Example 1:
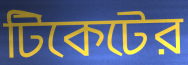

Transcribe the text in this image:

টিকেটের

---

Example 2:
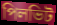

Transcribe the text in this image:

পিলভিট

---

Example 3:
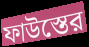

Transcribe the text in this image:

ফাউস্তের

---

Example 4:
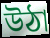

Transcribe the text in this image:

উঠা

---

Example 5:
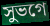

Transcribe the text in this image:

সুভগে